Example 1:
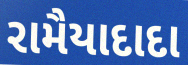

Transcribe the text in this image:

રામૈયાદાદા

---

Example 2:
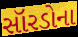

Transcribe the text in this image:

સૉરડોના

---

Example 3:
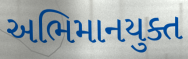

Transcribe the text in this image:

અભિમાનયુક્ત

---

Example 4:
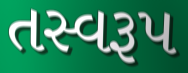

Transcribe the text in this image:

તસ્વરૂપ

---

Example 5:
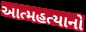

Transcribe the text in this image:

આત્મહત્યાનો